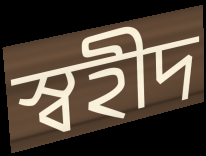
স্বহীদ